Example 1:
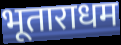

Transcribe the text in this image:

भूताराधम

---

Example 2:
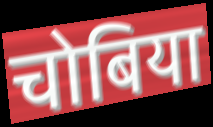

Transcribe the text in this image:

चोबिया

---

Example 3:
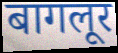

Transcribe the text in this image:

बागलूर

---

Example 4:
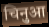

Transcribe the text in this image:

चिनुआ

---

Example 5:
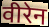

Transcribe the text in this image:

वीरेन